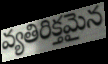
వ్యతిరిక్తమైన